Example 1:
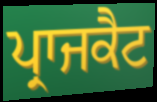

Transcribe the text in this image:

ਪ੍ਰਾਜਕੈਟ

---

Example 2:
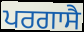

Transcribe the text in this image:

ਪਰਗਾਸੈ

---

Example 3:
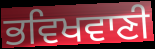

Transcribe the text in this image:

ਭਵਿਖਵਾਣੀ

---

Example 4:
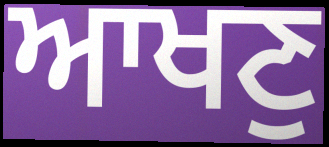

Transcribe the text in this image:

ਆਖਣੁ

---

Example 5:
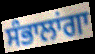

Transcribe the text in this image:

ਸੰਭਾਲਾਂਗਾ